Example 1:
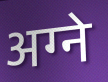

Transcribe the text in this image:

अग्ने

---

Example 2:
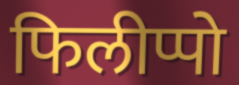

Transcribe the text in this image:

फिलीप्पो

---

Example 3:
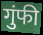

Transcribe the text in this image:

गुंफी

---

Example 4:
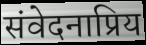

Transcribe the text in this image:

संवेदनाप्रिय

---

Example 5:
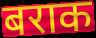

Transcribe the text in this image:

बराक